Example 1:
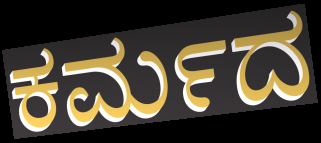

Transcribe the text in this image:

ಕರ್ಮದ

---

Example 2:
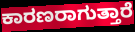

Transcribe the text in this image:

ಕಾರಣರಾಗುತ್ತಾರೆ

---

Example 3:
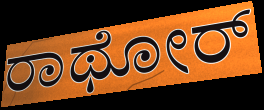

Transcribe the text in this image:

ರಾಥೋರ್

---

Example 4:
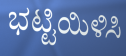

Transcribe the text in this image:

ಭಟ್ಟಿಯಿಳಿಸಿ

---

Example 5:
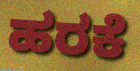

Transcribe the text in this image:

ಹರಕೆ